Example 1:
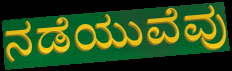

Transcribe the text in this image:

ನಡೆಯುವೆವು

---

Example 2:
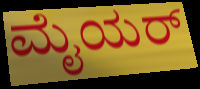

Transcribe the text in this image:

ಮೈಯರ್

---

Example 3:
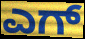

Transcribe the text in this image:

ಎಗ್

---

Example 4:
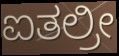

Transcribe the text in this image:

ಐತಲ್ರೀ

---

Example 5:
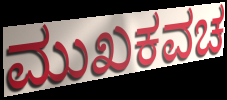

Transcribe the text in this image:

ಮುಖಕವಚ